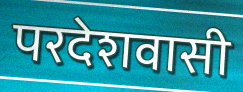
परदेशवासी